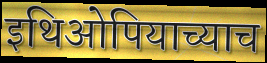
इथिओपियाच्याच